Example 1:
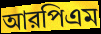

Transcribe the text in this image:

আরপিএম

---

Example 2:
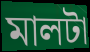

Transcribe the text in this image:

মালটা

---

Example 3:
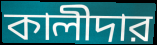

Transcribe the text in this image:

কালীদার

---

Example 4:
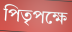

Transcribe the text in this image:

পিতৃপক্ষে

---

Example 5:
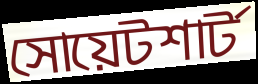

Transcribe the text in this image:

সোয়েটশার্ট